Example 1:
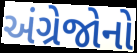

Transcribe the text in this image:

અંગ્રેજોનો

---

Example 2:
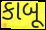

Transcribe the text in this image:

કાબૂ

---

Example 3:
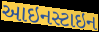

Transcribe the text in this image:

આઇનસ્ટાઇન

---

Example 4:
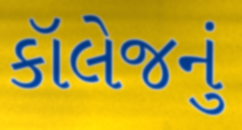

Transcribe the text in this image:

કૉલેજનું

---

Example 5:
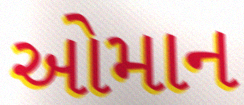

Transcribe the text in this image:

ઓમાન